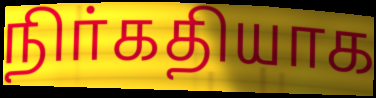
நிர்கதியாக